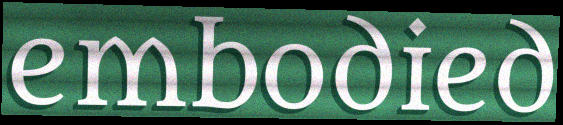
embodied